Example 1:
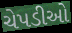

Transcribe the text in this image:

ચેપડીઓ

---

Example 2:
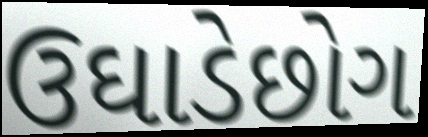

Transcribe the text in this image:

ઉઘાડેછોગ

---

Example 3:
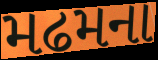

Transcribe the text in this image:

મઢમના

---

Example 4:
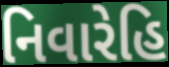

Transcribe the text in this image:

નિવારેહિ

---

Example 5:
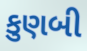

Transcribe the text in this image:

કુણબી